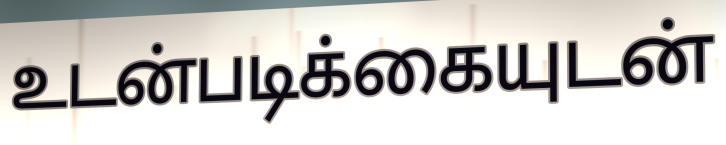
உடன்படிக்கையுடன்